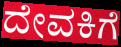
ದೇವಕಿಗೆ